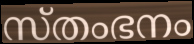
സ്തംഭനം